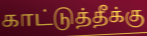
காட்டுத்தீக்கு